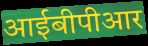
आईबीपीआर